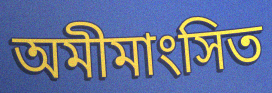
অমীমাংসিত